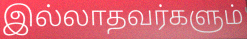
இல்லாதவர்களும்